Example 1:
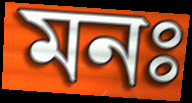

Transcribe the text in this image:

মনঃ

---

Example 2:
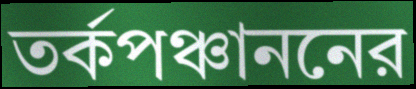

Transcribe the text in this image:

তর্কপঞ্চাননের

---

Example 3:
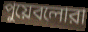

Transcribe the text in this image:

পুয়েবলোরা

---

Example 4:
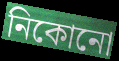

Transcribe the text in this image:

নিকোনো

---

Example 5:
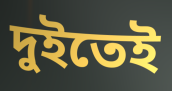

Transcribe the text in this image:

দুইতেই